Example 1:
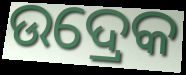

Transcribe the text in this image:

ଉଦ୍ରେକ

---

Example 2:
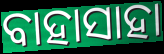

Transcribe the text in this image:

ବାହାସାହା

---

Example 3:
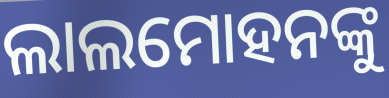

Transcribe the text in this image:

ଲାଲମୋହନଙ୍କୁ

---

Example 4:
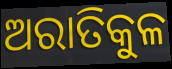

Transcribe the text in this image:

ଅରାତିକୁଳ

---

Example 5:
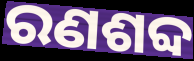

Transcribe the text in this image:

ରଣଶବ୍ଦ